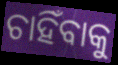
ଚାହିଁବାକୁ